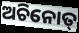
ଅଚିନୋତ୍